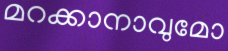
മറക്കാനാവുമോ